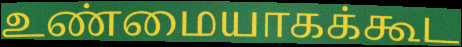
உண்மையாகக்கூட